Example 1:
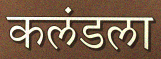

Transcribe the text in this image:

कलंडला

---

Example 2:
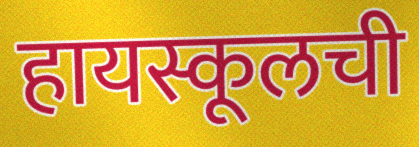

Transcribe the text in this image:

हायस्कूलची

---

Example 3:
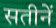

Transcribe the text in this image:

सतीनें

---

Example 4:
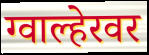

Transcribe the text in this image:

ग्वाल्हेरवर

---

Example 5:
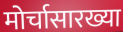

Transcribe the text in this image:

मोर्चासारख्या